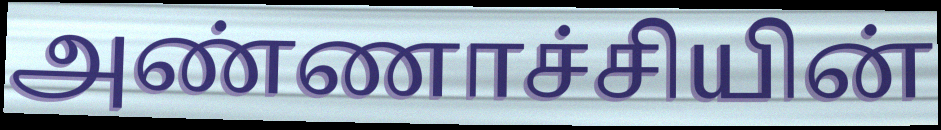
அண்ணாச்சியின்